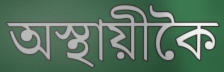
অস্থায়ীকৈ